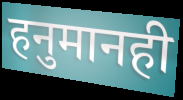
हनुमानही